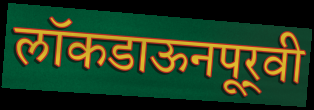
लॉकडाऊनपूर्वी